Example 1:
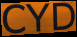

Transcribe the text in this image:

CYD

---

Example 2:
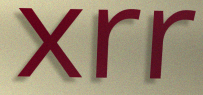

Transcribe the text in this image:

xrr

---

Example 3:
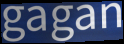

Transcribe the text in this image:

gagan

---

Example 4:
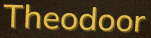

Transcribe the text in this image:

Theodoor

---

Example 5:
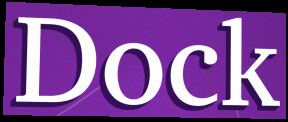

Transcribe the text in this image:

Dock